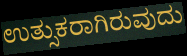
ಉತ್ಸುಕರಾಗಿರುವುದು